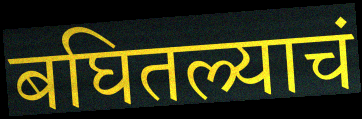
बघितल्याचं